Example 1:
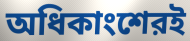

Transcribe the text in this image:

অধিকাংশেরই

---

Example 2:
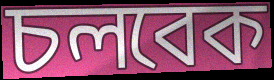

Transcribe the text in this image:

চলবেক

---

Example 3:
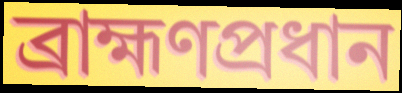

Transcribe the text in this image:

ব্রাহ্মণপ্রধান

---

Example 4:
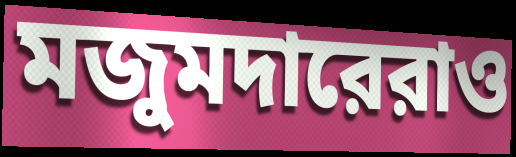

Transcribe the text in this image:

মজুমদারেরাও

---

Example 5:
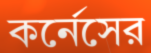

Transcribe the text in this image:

কর্নেসের